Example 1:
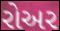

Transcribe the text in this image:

રોઅર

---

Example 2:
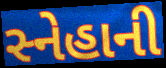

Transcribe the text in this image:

સ્નેહાની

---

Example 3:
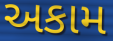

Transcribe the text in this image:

અકામ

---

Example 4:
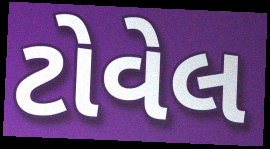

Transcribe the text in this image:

ટોવેલ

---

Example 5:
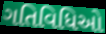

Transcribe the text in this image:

ગતિવિધિઓ